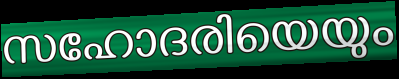
സഹോദരിയെയും